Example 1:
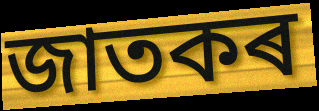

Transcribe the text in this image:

জাতকৰ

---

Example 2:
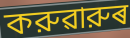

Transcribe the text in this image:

কৰুৱাৰুৰ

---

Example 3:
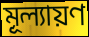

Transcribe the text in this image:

মূল্যায়ণ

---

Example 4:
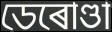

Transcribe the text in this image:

ডেৰোণ্ডা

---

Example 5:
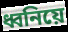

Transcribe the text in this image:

ধ্বনিয়ে